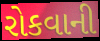
રોકવાની